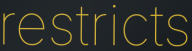
restricts